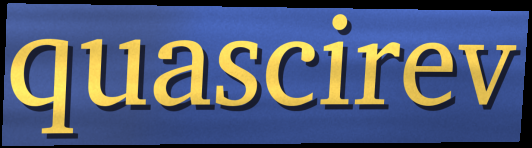
quascirev